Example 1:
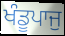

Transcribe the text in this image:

ਖੰਡੂਪਾਜੁ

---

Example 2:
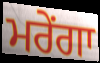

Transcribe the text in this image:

ਮਰੇਂਗਾ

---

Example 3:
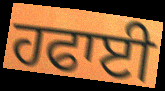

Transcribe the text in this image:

ਹਫਾਈ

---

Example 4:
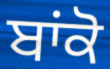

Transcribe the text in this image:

ਬਾਂਕੋ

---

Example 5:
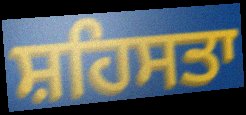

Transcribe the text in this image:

ਸ਼ਹਿਸਤਾ